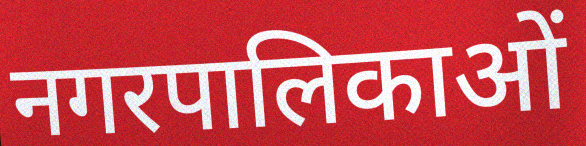
नगरपालिकाओं